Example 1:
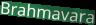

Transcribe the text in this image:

Brahmavara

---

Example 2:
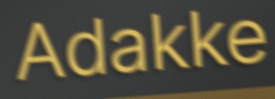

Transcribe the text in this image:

Adakke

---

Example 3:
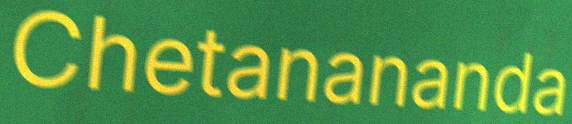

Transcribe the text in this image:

Chetanananda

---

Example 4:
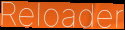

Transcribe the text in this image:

Reloader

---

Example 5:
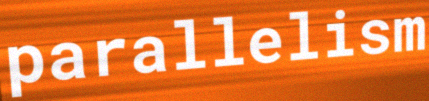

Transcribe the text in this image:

parallelism